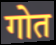
गोत